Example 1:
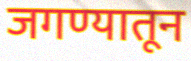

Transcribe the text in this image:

जगण्यातून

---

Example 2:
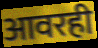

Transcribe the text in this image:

आवरही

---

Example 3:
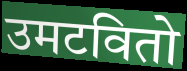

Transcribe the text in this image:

उमटवितो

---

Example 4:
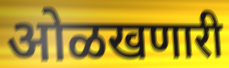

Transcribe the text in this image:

ओळखणारी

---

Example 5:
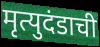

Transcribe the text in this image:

मृत्युदंडाची